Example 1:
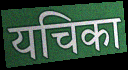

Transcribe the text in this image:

यचिका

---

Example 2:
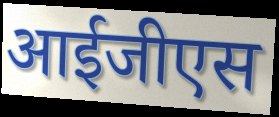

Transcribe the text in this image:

आईजीएस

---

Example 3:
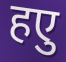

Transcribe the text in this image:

हएु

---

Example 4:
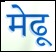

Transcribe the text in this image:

मेढू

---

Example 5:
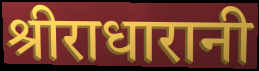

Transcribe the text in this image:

श्रीराधारानी